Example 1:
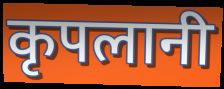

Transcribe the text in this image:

कृपलानी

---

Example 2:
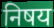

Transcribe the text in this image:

निषय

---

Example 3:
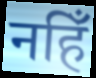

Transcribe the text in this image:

नहिँ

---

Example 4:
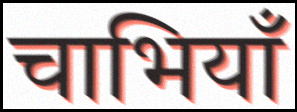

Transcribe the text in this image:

चाभियाँ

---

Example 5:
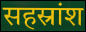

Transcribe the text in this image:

सहस्रांश